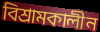
বিশ্রামকালীন